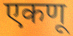
एकणू